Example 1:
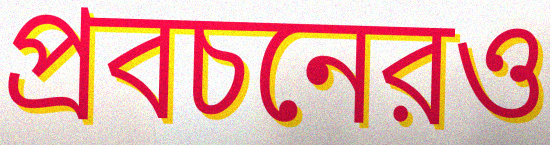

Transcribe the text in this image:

প্রবচনেরও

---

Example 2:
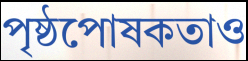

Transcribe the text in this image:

পৃষ্ঠপোষকতাও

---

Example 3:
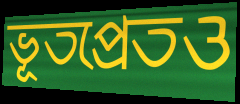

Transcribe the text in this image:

ভূতপ্রেতও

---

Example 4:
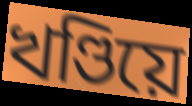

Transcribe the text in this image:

খণ্ডিয়ে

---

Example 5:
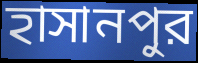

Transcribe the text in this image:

হাসানপুর